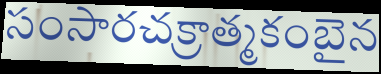
సంసారచక్రాత్మకంబైన